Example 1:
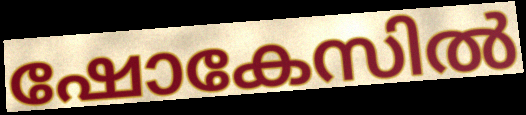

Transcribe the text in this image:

ഷോകേസിൽ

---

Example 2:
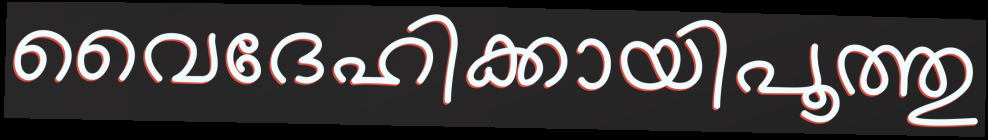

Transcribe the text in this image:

വൈദേഹിക്കായിപൂത്തു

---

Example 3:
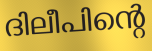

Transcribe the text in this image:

ദിലീപിന്റെ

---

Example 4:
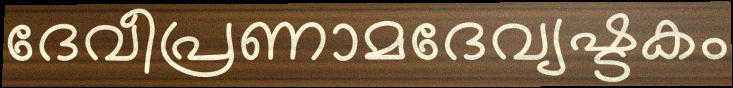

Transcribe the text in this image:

ദേവീപ്രണാമദേവ്യഷ്ടകം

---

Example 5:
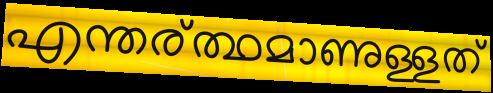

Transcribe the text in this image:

എന്തര്ത്ഥമാണുള്ളത്